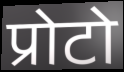
प्रोटो